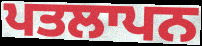
ਪਤਲਾਪਨ